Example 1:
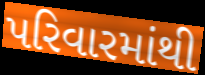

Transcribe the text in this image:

પરિવારમાંથી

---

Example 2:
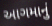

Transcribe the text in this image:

આગમાનું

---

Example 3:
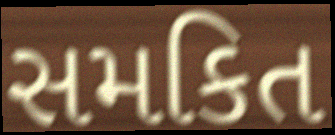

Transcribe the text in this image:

સમકિત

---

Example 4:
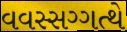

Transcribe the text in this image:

વવસ્સગ્ગત્થે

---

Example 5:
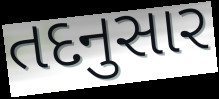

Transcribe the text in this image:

તદનુસાર